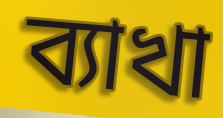
ব্যাখা